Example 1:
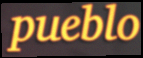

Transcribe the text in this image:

pueblo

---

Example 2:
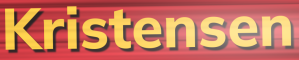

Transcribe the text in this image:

Kristensen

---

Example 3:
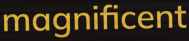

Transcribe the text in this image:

magnificent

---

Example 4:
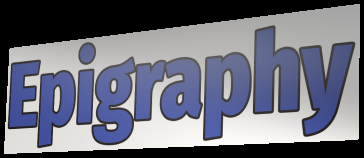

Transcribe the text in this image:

Epigraphy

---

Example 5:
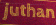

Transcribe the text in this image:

juthan